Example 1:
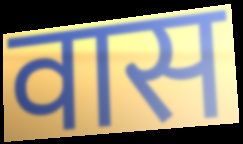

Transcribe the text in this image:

वास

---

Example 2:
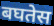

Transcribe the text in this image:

बघतेस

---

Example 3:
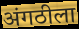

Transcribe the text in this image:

अंगठीला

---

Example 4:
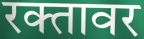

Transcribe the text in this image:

रक्तावर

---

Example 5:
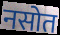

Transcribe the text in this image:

नसोत